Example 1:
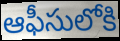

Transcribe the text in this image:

ఆఫీసులోకి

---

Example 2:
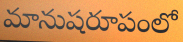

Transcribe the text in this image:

మానుషరూపంలో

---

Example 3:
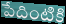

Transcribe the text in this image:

పేదింటికి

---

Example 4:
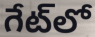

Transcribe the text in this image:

గేట్‌లో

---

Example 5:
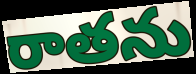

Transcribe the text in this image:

రాతను